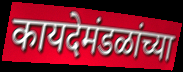
कायदेमंडळांच्या